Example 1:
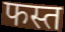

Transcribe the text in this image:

फस्त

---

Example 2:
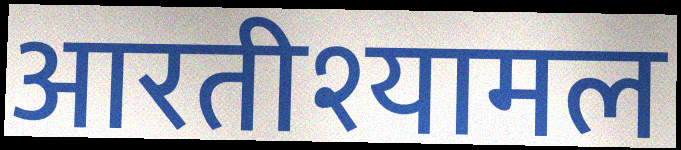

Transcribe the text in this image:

आरतीश्यामल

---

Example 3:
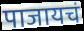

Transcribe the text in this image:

पाजायचं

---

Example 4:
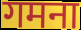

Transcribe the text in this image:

गमना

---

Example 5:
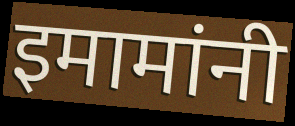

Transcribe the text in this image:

इमामांनी